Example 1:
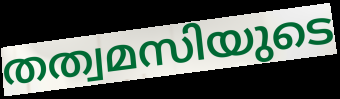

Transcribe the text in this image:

തത്വമസിയുടെ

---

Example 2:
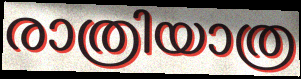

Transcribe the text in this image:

രാത്രിയാത്ര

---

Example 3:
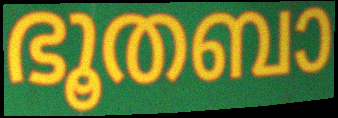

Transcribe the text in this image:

ഭൂതബാ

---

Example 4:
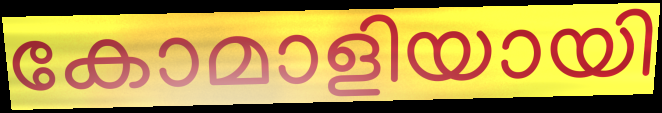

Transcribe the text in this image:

കോമാളിയായി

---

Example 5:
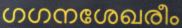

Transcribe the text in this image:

ഗഗനശേഖരീം